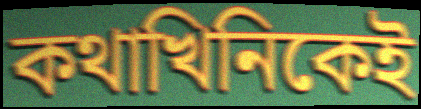
কথাখিনিকেই